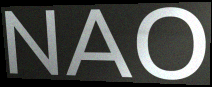
NAO